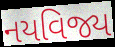
નયવિજ્ય